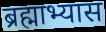
ब्रह्माभ्यास